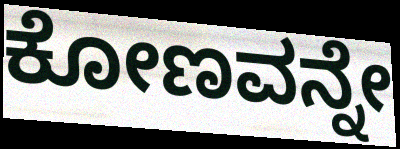
ಕೋಣವನ್ನೇ